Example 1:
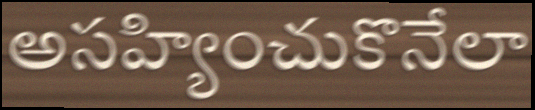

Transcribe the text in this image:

అసహ్యించుకొనేలా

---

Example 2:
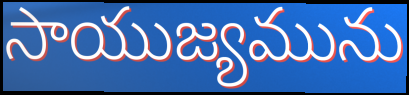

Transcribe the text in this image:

సాయుజ్యమును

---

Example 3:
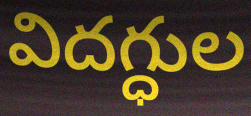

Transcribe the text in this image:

విదగ్ధుల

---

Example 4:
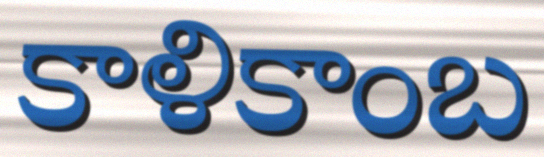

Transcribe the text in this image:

కాళికాంబ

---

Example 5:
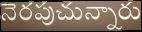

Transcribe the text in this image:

నెరపుచున్నారు